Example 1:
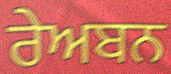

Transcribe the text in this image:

ਰੇਅਬਨ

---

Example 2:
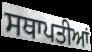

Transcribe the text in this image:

ਸਥਾਪਤੀਆਂ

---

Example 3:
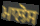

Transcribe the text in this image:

ਮਾਲੋਸ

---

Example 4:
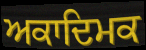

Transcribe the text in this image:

ਅਕਾਦਿਮਕ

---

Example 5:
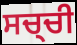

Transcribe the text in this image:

ਸਚ੍ਚੀ